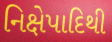
નિક્ષેપાદિથી